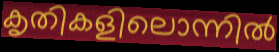
കൃതികളിലൊന്നിൽ